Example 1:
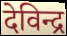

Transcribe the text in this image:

देविन्द्र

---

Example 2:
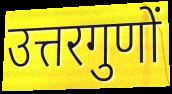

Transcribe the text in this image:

उत्तरगुणों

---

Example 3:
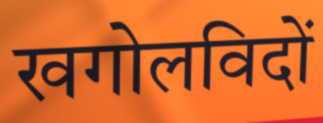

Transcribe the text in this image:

खगोलविदों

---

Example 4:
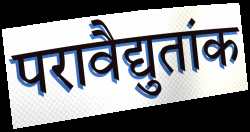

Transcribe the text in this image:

परावैद्युतांक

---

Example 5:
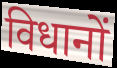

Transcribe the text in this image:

विधानों